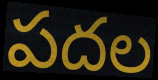
పదల